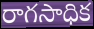
రాగసాధిక